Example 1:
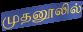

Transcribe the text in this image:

முதனூலில்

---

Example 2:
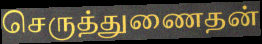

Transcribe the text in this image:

செருத்துணைதன்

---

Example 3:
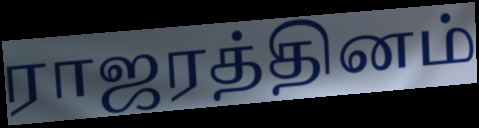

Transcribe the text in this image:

ராஜரத்தினம்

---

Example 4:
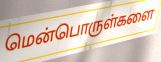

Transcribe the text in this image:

மென்பொருள்களை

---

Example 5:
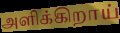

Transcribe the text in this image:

அளிக்கிறாய்